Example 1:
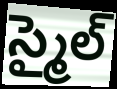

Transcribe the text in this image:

స్మైల్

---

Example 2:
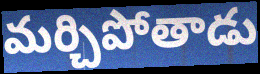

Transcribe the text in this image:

మర్చిపోతాడు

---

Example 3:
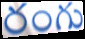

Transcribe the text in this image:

రంగు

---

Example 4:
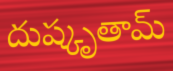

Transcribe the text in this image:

దుష్కృతామ్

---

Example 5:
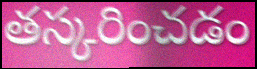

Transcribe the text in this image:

తస్కరించడం